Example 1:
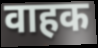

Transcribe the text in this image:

वाहक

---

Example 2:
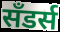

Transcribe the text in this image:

सॅंडर्स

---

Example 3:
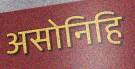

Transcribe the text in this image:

असोनिहि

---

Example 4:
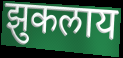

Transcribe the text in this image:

झुकलाय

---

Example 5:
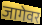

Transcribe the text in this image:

जागेवर